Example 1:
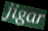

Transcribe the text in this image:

jigar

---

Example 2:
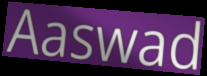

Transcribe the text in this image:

Aaswad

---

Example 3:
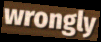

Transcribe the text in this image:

wrongly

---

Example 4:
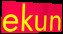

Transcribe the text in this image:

ekun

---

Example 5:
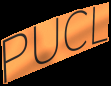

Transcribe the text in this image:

PUCL